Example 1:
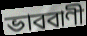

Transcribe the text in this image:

ভাববাণী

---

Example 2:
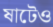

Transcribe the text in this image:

ষাটেও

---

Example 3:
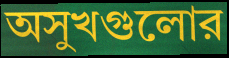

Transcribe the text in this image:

অসুখগুলোর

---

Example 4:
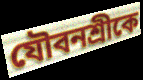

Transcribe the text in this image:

যৌবনশ্রীকে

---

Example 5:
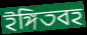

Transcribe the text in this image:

ইঙ্গিতবহ